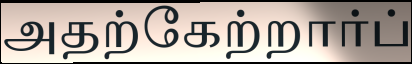
அதற்கேற்றார்ப்